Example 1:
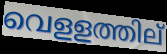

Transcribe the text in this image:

വെളളത്തില്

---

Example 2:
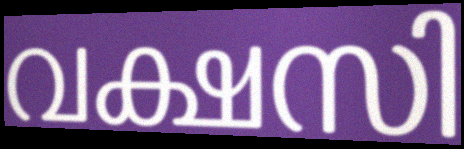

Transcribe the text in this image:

വക്ഷസി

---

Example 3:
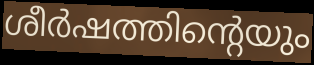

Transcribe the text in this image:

ശീർഷത്തിന്റെയും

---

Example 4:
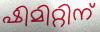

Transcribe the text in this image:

ഷിമിറ്റിന്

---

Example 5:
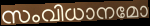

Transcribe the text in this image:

സംവിധാനമോ